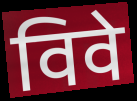
विवे